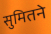
सुमितने